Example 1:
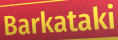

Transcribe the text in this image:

Barkataki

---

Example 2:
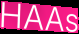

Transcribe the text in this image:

HAAs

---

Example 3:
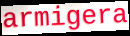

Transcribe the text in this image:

armigera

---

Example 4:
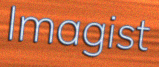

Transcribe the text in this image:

Imagist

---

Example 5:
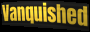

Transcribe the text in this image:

Vanquished